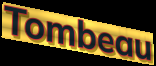
Tombeau